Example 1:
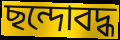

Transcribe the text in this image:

ছন্দোবদ্ধ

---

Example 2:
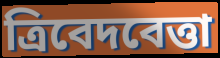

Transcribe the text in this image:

ত্রিবেদবেত্তা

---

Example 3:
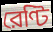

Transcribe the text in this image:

রেণ্টি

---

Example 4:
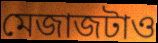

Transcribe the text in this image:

মেজাজটাও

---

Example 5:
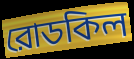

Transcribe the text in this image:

রোডকিল